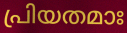
പ്രിയതമാഃ